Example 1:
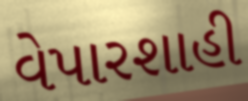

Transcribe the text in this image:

વેપારશાહી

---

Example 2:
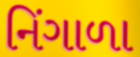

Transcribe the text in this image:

નિંગાળા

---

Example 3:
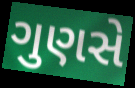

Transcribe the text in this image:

ગુણસે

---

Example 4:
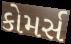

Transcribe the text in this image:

કોમર્સ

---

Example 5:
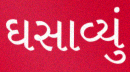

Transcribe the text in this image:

ઘસાવ્યું